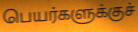
பெயர்களுக்குச்